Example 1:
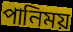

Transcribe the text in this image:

পানিময়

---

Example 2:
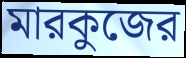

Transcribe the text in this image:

মারকুজের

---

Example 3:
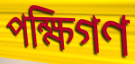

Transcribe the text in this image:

পক্ষিগণ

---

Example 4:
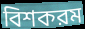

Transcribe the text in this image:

বিশকরম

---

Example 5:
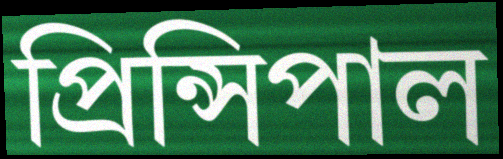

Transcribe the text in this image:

প্রিন্সিপাল